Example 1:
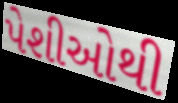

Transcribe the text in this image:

પેશીઓથી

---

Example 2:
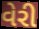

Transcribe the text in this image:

વેરી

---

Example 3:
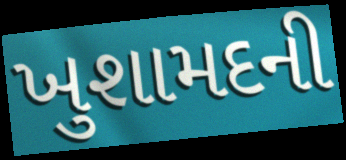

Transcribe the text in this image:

ખુશામદની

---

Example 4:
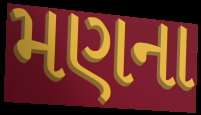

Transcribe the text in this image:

મણના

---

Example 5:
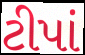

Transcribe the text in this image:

ટીપાં